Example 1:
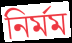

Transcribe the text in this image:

নিৰ্মম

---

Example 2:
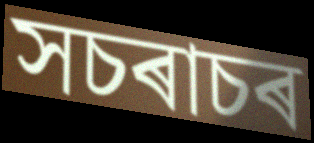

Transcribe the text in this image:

সচৰাচৰ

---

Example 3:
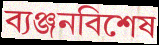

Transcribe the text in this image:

ব্যঞ্জনবিশেষ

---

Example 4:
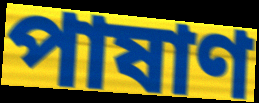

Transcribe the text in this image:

পাষাণ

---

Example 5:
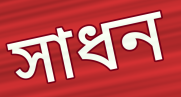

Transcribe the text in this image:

সাধন